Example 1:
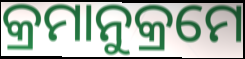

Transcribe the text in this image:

କ୍ରମାନୁକ୍ରମେ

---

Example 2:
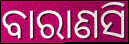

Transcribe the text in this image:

ବାରାଣସି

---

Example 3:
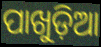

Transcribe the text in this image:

ପାଖୁଡ଼ିଆ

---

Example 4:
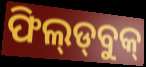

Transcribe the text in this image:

ଫିଲ୍‍ଡ୍‍ବୁକ୍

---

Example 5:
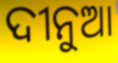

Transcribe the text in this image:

ଦୀନୁଆ